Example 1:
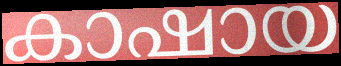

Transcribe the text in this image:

കാഷായ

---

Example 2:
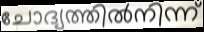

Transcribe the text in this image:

ചോദ്യത്തിൽനിന്ന്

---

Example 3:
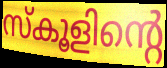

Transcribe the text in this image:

സ്കൂളിന്റെ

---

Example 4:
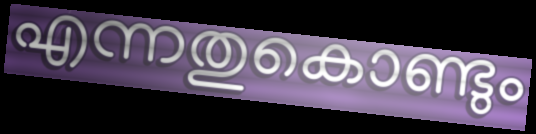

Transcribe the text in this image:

എന്നതുകൊണ്ടും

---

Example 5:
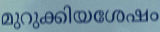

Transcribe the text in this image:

മുറുക്കിയശേഷം